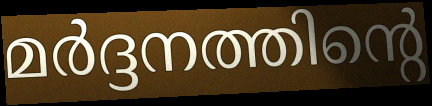
മർദ്ദനത്തിന്റെ